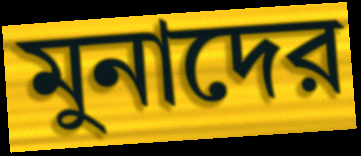
মুনাদের